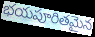
భయపూరితమైన